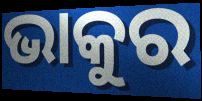
ଭାକୁର